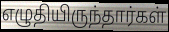
எழுதியிருந்தார்கள்